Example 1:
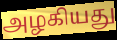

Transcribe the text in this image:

அழகியது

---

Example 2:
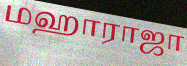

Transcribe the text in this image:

மஹாராஜா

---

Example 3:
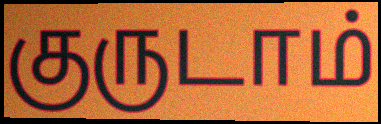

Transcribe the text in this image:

குருடாம்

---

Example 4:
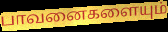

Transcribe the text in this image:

பாவனைகளையும்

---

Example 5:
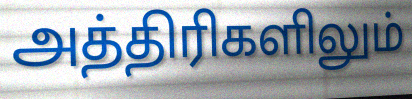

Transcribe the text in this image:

அத்திரிகளிலும்